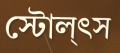
স্টোল্ৎস